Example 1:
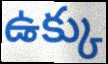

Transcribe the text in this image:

ఉక్కు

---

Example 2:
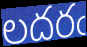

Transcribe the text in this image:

లదరఁ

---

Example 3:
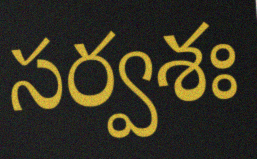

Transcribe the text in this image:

సర్వశః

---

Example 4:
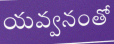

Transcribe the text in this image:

యవ్వనంతో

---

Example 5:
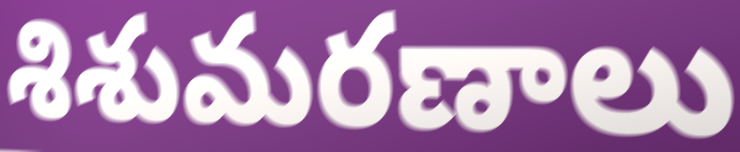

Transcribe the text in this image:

శిశుమరణాలు